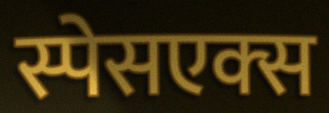
स्‍पेसएक्‍स